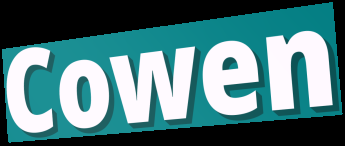
Cowen